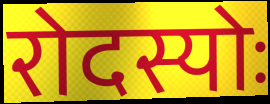
रोदस्योः